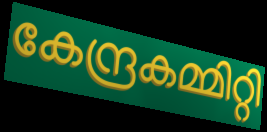
കേന്ദ്രകമ്മിറ്റി